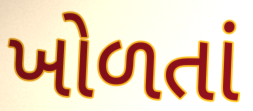
ખોળતાં